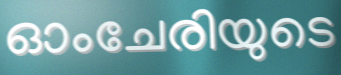
ഓംചേരിയുടെ